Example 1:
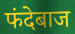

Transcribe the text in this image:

फंदेबाज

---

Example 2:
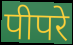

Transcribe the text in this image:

पीपरे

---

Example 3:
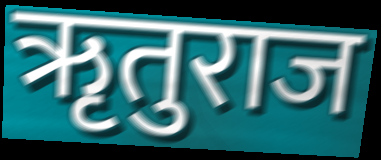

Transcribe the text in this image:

ऋृतुराज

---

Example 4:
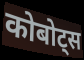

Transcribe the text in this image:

कोबोट्स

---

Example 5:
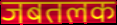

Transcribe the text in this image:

जबतलक